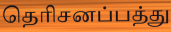
தெரிசனப்பத்து